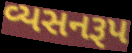
વ્યસનરૂપ